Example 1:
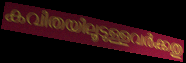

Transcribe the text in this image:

കവിതയിലൂടുള്ളവർക്കതു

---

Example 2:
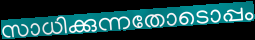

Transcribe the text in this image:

സാധിക്കുന്നതോടൊപ്പം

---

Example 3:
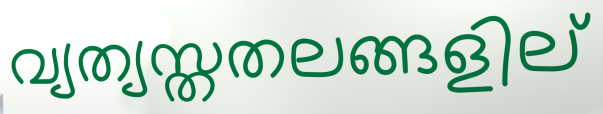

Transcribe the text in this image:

വ്യത്യസ്തതലങ്ങളില്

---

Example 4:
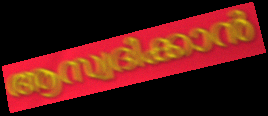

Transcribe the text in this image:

ആസ്വദിക്കാൻ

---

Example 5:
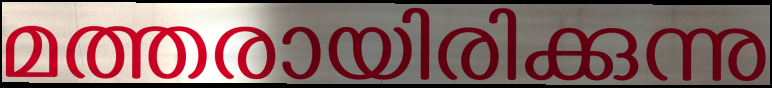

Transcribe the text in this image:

മത്തരായിരിക്കുന്നു